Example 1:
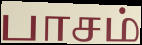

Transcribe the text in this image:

பாசம்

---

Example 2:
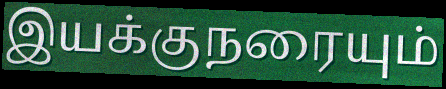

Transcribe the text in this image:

இயக்குநரையும்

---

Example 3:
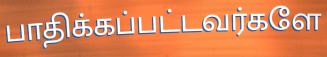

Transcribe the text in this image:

பாதிக்கப்பட்டவர்களே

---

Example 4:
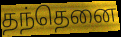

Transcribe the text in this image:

தந்தெனை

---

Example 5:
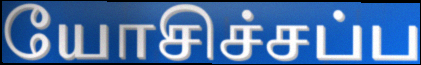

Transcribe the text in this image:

யோசிச்சப்ப